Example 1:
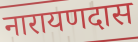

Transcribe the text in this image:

नारायणदास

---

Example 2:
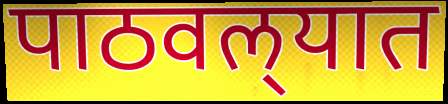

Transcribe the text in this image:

पाठवल्यात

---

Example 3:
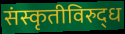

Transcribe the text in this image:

संस्कृतीविरुद्ध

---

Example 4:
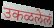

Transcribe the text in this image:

उकळलेलं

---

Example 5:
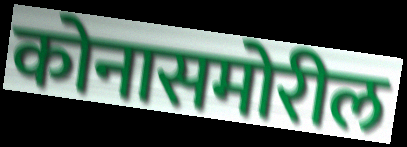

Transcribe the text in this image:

कोनासमोरील